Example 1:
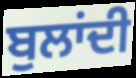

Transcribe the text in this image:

ਬੁਲਾਂਦੀ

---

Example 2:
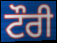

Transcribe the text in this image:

ਟੌਰੀ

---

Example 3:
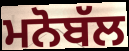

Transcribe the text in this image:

ਮਨੋਬੱਲ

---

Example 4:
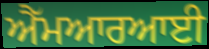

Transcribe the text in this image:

ਐੱਮਆਰਆਈ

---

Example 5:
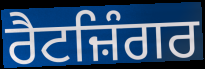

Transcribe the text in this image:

ਰੈਟਜ਼ਿੰਗਰ